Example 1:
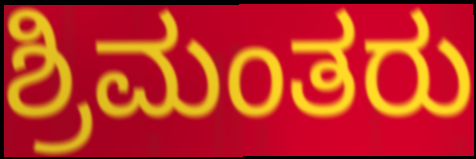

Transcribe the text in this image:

ಶ್ರಿಮಂತರು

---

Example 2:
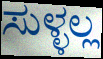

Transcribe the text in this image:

ಸುಳ್ಳಲ್ಲ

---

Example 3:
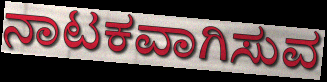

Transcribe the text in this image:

ನಾಟಕವಾಗಿಸುವ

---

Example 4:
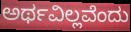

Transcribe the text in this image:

ಅರ್ಥವಿಲ್ಲವೆಂದು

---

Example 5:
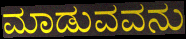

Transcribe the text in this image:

ಮಾಡುವವನು